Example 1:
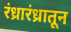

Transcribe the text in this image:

रंध्रारंध्रातून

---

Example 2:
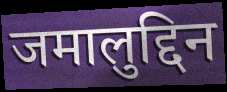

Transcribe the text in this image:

जमालुद्दिन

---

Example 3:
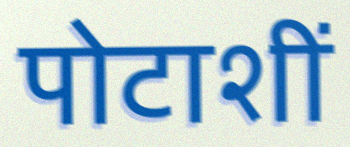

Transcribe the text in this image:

पोटाशीं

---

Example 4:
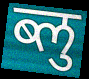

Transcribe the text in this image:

ब्लु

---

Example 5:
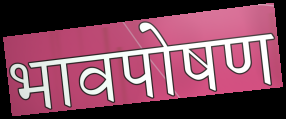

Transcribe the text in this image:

भावपोषण